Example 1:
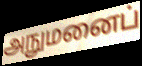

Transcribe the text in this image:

அநுமனைப்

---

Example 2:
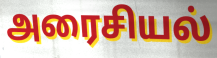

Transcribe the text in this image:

அரைசியல்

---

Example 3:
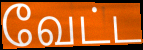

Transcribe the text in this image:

வேட்ட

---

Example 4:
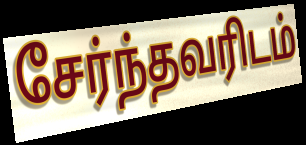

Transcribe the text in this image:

சேர்ந்தவரிடம்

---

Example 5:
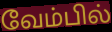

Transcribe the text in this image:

வேம்பில்